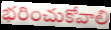
భరించుకోవాలి